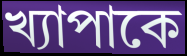
খ্যাপাকে